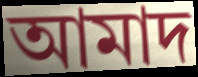
আমাদ